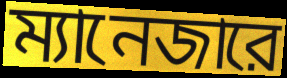
ম্যানেজারে